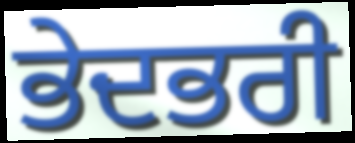
ਭੇਦਭਰੀ